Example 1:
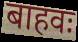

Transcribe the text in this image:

बाहवः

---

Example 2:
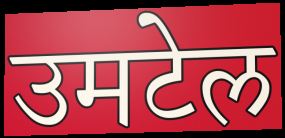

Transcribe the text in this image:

उमटेल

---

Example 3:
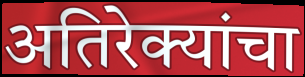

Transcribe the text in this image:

अतिरेक्यांचा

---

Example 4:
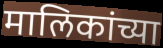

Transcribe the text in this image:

मालिकांच्या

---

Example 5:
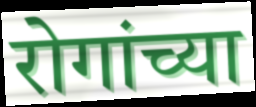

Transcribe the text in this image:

रोगांच्या